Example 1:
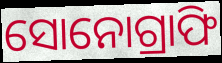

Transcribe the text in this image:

ସୋନୋଗ୍ରାଫି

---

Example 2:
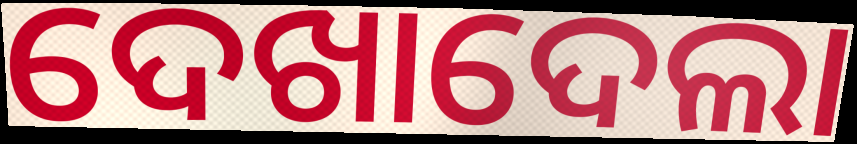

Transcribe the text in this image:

ଦେଖାଦେଲା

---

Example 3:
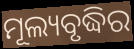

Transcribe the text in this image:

ମୂଲ୍ୟବୃଦ୍ଧିର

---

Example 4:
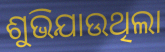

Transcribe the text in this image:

ଶୁଭିଯାଉଥିଲା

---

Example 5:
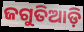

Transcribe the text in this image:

ଜଗୁତିଆଡ଼ି